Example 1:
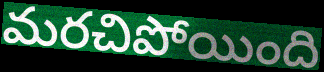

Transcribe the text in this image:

మరచిపోయింది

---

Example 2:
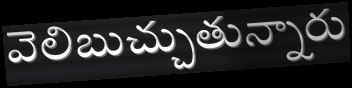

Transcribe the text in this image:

వెలిబుచ్చుతున్నారు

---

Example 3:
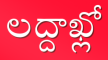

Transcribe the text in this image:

లద్దాఖ్లో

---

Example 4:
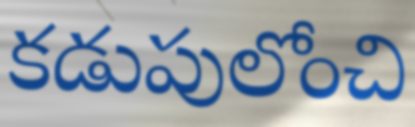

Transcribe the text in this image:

కడుపులోంచి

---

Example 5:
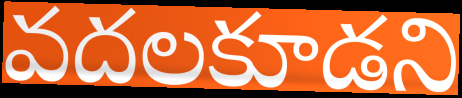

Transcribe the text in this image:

వదలకూడని